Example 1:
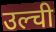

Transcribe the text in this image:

उल्ची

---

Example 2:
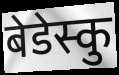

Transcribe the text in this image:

बेडेस्कु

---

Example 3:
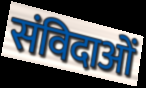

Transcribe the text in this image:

संविदाओं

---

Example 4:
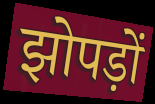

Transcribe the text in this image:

झोपड़ों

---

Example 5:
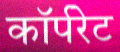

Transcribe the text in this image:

कॉर्परेट